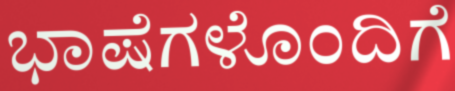
ಭಾಷೆಗಳೊಂದಿಗೆ